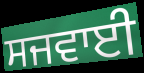
ਸਜਵਾਈ